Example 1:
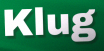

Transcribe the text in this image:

Klug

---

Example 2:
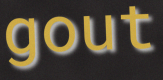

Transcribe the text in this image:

gout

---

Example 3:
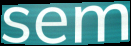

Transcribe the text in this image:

sem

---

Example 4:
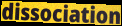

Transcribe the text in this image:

dissociation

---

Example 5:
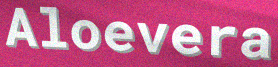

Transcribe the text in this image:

Aloevera